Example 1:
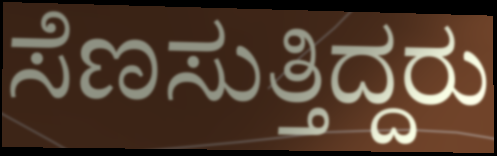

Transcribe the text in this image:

ಸೆಣಸುತ್ತಿದ್ದರು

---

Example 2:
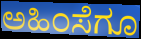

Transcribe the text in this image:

ಅಹಿಂಸೆಗೂ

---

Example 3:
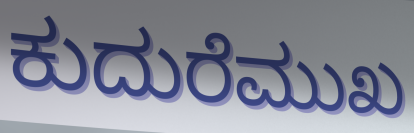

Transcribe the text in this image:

ಕುದುರೆಮುಖ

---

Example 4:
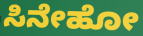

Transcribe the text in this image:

ಸಿನೇಹೋ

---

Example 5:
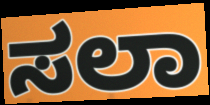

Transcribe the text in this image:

ಸಲಾ